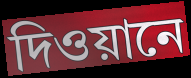
দিওয়ানে